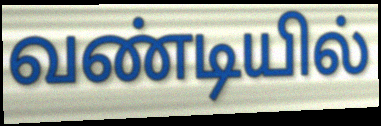
வண்டியில்